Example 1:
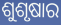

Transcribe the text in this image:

ଶୁଶୃଷାର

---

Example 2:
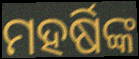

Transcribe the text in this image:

ମହର୍ଷିଙ୍କ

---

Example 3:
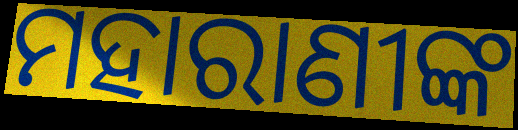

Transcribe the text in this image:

ମହାରାଣୀଙ୍କ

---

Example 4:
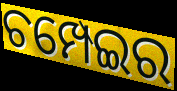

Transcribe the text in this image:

ଚମ୍ପେଇର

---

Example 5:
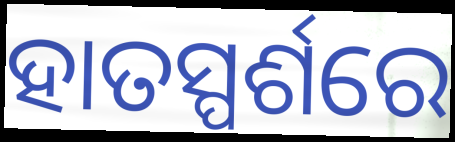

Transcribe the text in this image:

ହାତସ୍ପର୍ଶରେ